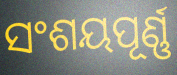
ସଂଶୟପୂର୍ଣ୍ଣ